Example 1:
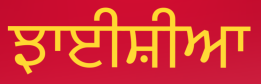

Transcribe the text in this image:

ਝਾਈਸ਼ੀਆ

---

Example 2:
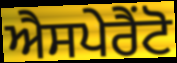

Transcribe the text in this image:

ਐਸਪੇਰੈਂਟੋ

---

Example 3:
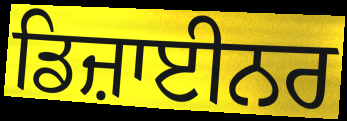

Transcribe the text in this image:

ਡਿਜ਼ਾਈਨਰ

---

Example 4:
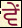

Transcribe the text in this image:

ਵੇਂ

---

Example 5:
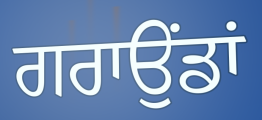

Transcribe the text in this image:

ਗਰਾਉਂਡਾਂ